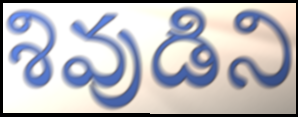
శివుడిని